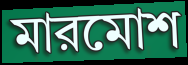
মারমোশ